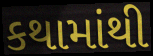
કથામાંથી